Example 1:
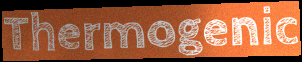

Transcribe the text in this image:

Thermogenic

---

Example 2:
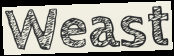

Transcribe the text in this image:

Weast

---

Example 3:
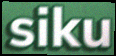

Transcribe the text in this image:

siku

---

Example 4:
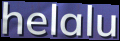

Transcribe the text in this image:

helalu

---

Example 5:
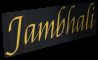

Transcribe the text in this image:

Jambhali